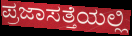
ಪ್ರಜಾಸತ್ತೆಯಲ್ಲಿ